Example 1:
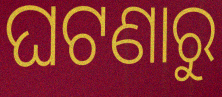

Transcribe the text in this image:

ଘଟଣାରୁ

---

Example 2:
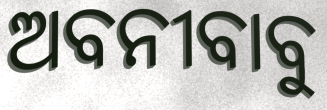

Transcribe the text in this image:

ଅବନୀବାବୁ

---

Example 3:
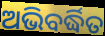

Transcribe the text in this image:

ଅଭିବର୍ଦ୍ଧିତ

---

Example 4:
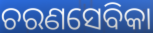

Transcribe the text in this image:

ଚରଣସେବିକା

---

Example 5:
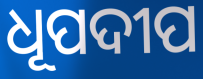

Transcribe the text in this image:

ଧୂପଦୀପ